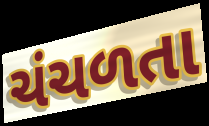
ચંચળતા